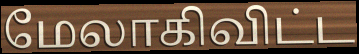
மேலாகிவிட்ட